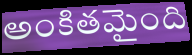
అంకితమైంది